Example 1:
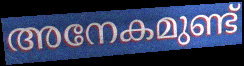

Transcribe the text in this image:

അനേകമുണ്ട്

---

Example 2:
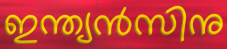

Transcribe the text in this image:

ഇന്ത്യൻസിനു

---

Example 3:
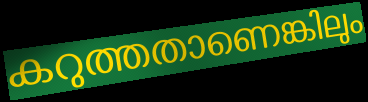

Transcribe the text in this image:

കറുത്തതാണെങ്കിലും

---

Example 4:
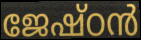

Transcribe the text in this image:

ജേഷ്ഠൻ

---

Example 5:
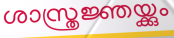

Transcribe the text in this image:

ശാസ്ത്രജ്ഞയ്ക്കും